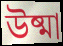
উষ্মা